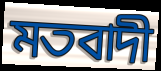
মতবাদী